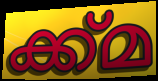
ക്ക്മ